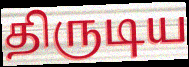
திருடிய